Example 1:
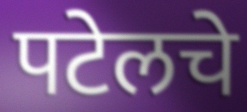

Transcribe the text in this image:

पटेलचे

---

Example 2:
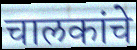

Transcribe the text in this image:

चालकांचे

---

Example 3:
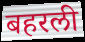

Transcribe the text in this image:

बहरली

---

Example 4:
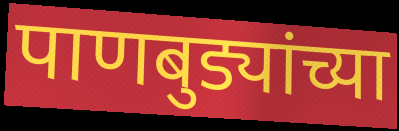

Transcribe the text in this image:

पाणबुड्यांच्या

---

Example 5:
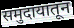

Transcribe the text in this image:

समुदायातून